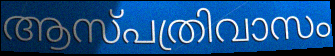
ആസ്പത്രിവാസം